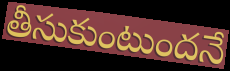
తీసుకుంటుందనే